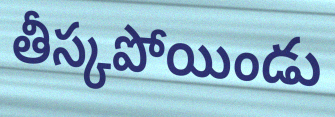
తీస్కపోయిండు